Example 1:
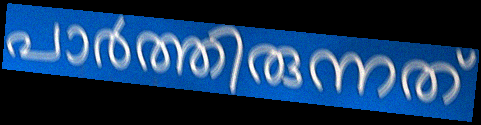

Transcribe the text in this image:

പാർത്തിരുന്നത്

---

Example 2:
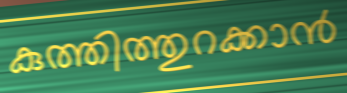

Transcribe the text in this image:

കുത്തിത്തുറക്കാൻ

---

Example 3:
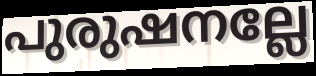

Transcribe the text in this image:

പുരുഷനല്ലേ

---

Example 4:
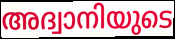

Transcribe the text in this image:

അദ്വാനിയുടെ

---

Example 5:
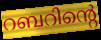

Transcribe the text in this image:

റബറിന്റെ